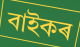
বাইকৰ